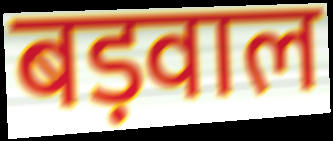
बड़वाल